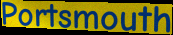
Portsmouth